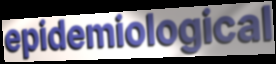
epidemiological